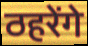
ठहरेंगे